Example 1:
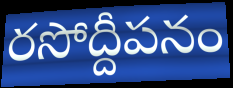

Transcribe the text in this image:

రసోద్దీపనం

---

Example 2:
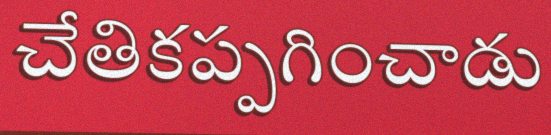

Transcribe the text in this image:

చేతికప్పగించాడు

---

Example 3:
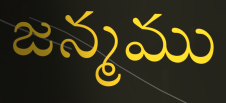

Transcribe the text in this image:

జన్మము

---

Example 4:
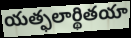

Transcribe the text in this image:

యత్ఫలార్థితయా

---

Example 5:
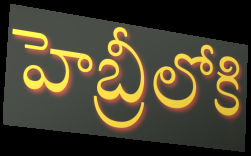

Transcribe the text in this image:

హెబ్రీలోకి